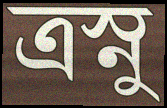
ত্রস্নু